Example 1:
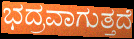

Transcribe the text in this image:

ಭದ್ರವಾಗುತ್ತದೆ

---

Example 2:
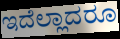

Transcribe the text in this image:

ಇದೆಲ್ಲಾದರೂ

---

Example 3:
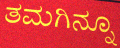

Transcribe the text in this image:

ತಮಗಿನ್ನೂ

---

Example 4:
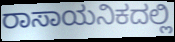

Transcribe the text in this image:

ರಾಸಾಯನಿಕದಲ್ಲಿ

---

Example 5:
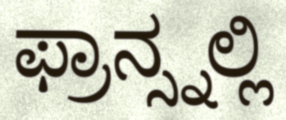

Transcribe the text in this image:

ಫ್ರಾನ್ಸ್ನಲ್ಲಿ